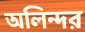
অলিন্দর